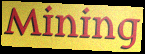
Mining